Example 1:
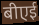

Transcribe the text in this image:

बीएई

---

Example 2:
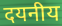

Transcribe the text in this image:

दयनीय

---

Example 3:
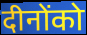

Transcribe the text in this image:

दीनोंको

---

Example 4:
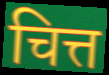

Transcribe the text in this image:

चित्त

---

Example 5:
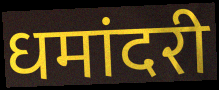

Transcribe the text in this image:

धमांदरी